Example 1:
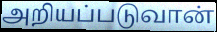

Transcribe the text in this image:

அறியப்படுவான்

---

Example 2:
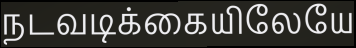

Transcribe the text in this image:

நடவடிக்கையிலேயே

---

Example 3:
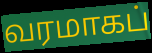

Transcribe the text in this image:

வரமாகப்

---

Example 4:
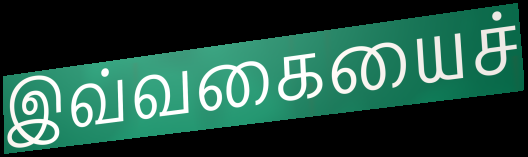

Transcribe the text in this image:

இவ்வகையைச்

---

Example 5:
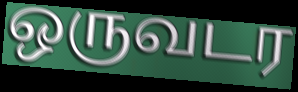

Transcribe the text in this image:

ஒருவடர